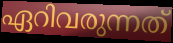
ഏറിവരുന്നത്